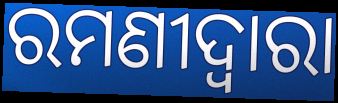
ରମଣୀଦ୍ୱାରା